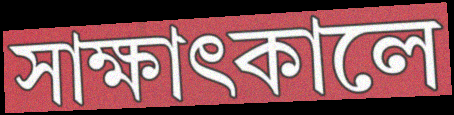
সাক্ষাৎকালে